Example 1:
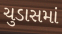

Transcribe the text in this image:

ચુડાસમાં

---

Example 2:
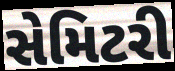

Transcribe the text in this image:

સેમિટરી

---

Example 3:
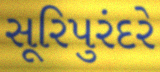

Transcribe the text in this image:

સૂરિપુરંદરે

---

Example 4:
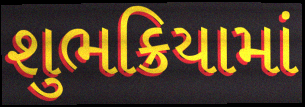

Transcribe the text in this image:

શુભક્રિયામાં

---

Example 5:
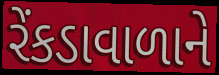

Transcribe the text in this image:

રેંકડાવાળાને